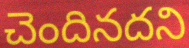
చెందినదని